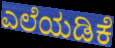
ಎಲೆಯಡಿಕೆ